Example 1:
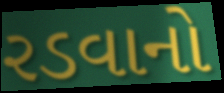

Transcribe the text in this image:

રડવાનો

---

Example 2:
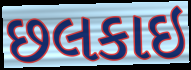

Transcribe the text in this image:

છલકાઇ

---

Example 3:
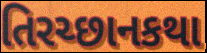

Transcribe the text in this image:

તિરચ્છાનકથા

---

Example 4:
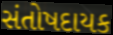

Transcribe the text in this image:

સંતોષદાયક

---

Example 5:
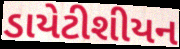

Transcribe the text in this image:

ડાયેટીશીયન